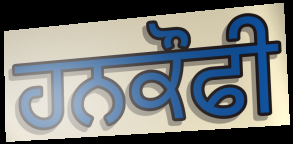
ਹਨਕੌਫੀ